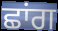
ਛਾਂਗ